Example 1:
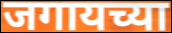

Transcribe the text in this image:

जगायच्या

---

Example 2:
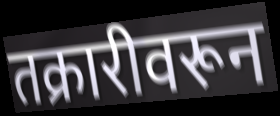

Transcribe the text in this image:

तक्रारीवरून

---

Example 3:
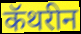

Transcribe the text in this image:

कॅथरीन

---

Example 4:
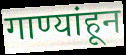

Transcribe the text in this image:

गाण्यांहून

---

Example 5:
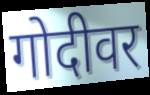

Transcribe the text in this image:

गोदीवर